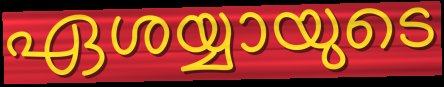
ഏശയ്യായുടെ